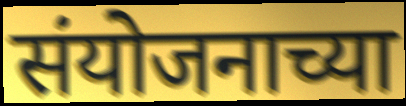
संयोजनाच्या